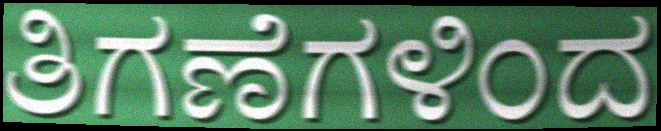
ತಿಗಣೆಗಳಿಂದ